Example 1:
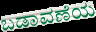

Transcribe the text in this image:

ಬಡಾವಣೆಯ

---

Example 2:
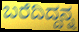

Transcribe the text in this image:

ಬರೆದಿದ್ದನ್ನ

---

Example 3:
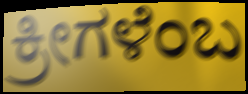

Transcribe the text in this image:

ಕ್ರೀಗಳೆಂಬ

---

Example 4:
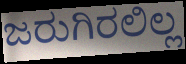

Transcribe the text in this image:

ಜರುಗಿರಲಿಲ್ಲ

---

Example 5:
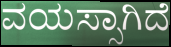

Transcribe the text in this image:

ವಯಸ್ಸಾಗಿದೆ